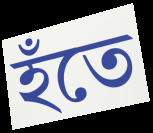
হঁতে